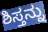
ಶಿಸ್ತನ್ನು